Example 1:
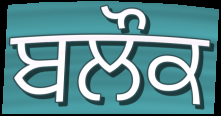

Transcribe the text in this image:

ਬਲੌਕ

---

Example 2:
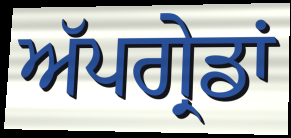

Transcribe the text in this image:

ਅੱਪਗ੍ਰੇਡਾਂ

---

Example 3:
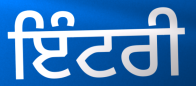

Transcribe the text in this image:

ਇੰਟਰੀ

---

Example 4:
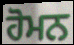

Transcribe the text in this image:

ਹੋਮਨ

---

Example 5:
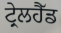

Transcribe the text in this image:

ਟ੍ਰੇਲਹੈੱਡ